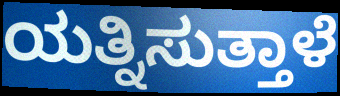
ಯತ್ನಿಸುತ್ತಾಳೆ